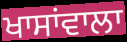
ਖਾਸਾਂਵਾਲਾ